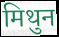
मिथुन